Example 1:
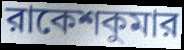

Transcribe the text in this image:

রাকেশকুমার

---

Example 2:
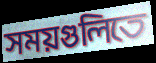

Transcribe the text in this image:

সময়গুলিতে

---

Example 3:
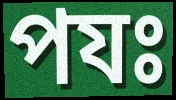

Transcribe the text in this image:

পযঃ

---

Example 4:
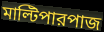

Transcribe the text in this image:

মাল্টিপারপাজ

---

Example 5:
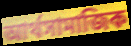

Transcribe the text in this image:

আর্থসামাজিক